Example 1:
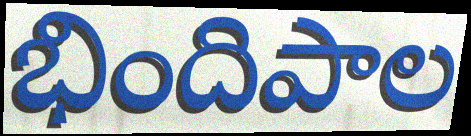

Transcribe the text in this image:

భిందిపాల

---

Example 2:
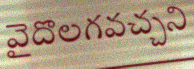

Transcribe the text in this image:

వైదొలగవచ్చని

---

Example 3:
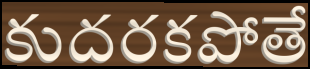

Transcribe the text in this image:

కుదరకపోతే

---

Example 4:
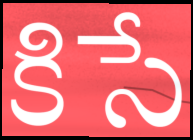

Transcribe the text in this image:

కిసే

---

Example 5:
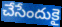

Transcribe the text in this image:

చేసేందుకై